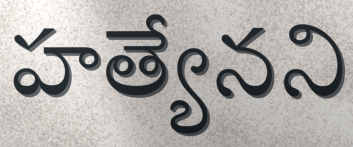
హత్యేనని